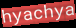
hyachya